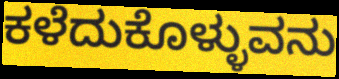
ಕಳೆದುಕೊಳ್ಳುವನು